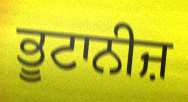
ਭੂਟਾਨੀਜ਼